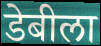
डेबीला